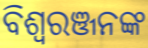
ବିଶ୍ବରଞ୍ଜନଙ୍କ